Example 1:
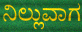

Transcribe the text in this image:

ನಿಲ್ಲುವಾಗ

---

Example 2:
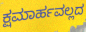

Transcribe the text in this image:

ಕ್ಷಮಾರ್ಹವಲ್ಲದ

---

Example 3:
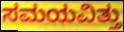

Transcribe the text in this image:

ಸಮಯವಿತ್ತು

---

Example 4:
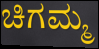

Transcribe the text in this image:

ಚಿಗಮ್ಮ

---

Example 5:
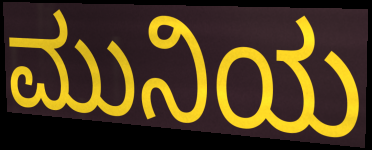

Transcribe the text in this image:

ಮುನಿಯ